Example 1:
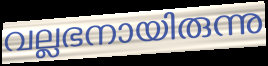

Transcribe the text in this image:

വല്ലഭനായിരുന്നു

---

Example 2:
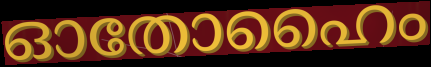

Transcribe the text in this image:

ഓതോഹൈം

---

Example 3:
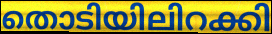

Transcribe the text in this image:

തൊടിയിലിറക്കി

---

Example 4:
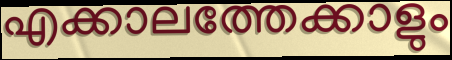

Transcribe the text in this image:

എക്കാലത്തേക്കാളും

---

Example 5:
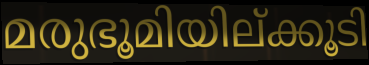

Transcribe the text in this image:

മരുഭൂമിയില്ക്കൂടി